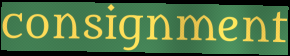
consignment